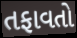
તફાવતો